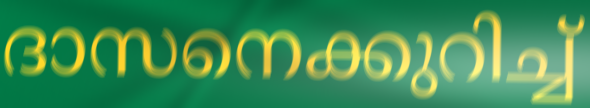
ദാസനെക്കുറിച്ച്